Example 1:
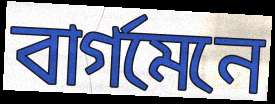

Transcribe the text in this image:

বাৰ্গমেনে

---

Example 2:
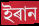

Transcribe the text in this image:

ইৰান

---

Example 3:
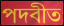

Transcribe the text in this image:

পদবীত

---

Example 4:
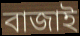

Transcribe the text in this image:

বাজাই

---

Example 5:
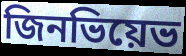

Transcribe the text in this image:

জিনভিয়েভ